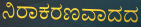
ನಿರಾಕರಣವಾದದ